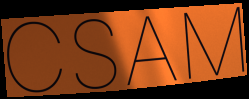
CSAM